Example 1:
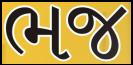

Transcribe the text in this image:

ભજ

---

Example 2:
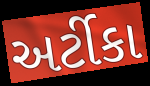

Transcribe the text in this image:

અર્ટીકા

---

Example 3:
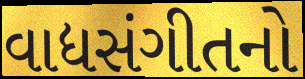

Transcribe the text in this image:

વાદ્યસંગીતનો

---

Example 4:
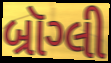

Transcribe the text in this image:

બ્રૉગ્લી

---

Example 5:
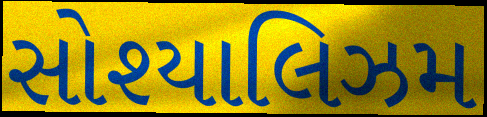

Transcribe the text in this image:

સોશ્યાલિઝમ